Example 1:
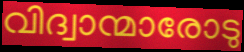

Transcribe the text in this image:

വിദ്വാന്മാരോടു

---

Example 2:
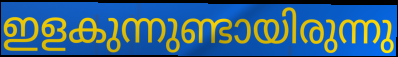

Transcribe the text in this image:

ഇളകുന്നുണ്ടായിരുന്നു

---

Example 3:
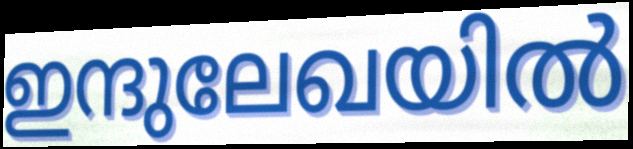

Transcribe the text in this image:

ഇന്ദുലേഖയിൽ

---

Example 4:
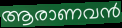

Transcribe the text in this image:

ആരാണവൻ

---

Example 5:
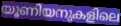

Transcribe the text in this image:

യൂണിയനുകളിലെ